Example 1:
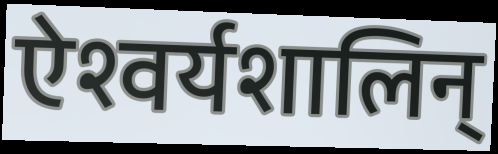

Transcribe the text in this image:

ऐश्वर्यशालिन्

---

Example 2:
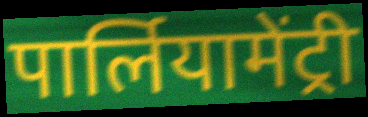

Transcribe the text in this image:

पार्लियामेंट्री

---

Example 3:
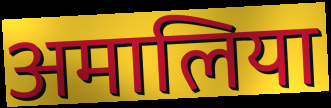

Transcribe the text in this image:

अमालिया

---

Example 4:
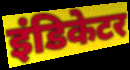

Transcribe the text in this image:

इंडिकेटर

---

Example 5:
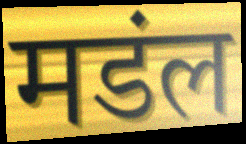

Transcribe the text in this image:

मडंल